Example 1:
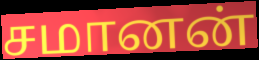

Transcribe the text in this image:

சமானன்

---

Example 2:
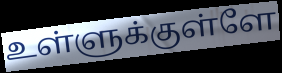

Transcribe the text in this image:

உள்ளுக்குள்ளே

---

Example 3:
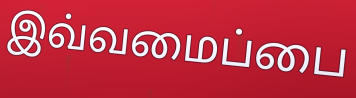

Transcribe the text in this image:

இவ்வமைப்பை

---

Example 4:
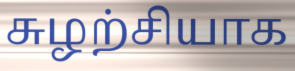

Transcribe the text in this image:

சுழற்சியாக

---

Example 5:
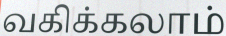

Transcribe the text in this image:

வகிக்கலாம்